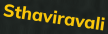
Sthaviravali